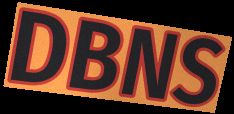
DBNS